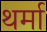
थर्मा